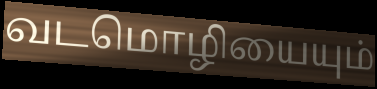
வடமொழியையும்